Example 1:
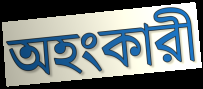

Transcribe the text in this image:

অহংকারী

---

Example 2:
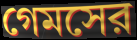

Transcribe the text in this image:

গেমসের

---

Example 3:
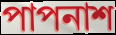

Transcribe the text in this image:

পাপনাশ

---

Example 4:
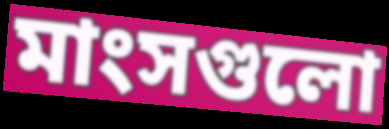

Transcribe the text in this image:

মাংসগুলো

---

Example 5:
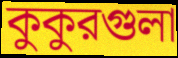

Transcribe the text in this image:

কুকুরগুলা